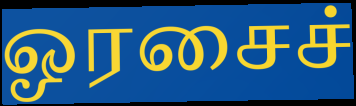
ஓரசைச்